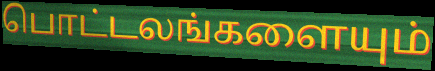
பொட்டலங்களையும்